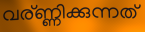
വര്ണ്ണിക്കുന്നത്